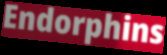
Endorphins